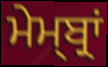
ਮੇਮ੍ਬ੍ਰਾਂ